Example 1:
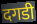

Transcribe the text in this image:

दगडी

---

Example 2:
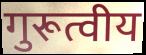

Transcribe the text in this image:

गुरूत्वीय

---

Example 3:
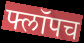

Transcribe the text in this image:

फ्लॉपच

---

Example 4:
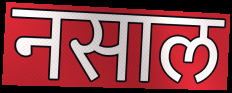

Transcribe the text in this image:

नसाल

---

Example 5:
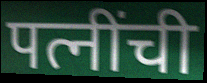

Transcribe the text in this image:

पत्नींची